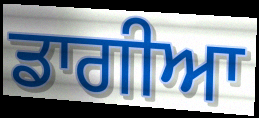
ਡਾਗੀਆ